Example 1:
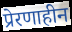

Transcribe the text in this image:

प्रेरणाहीन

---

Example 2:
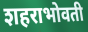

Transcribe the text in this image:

शहराभोवती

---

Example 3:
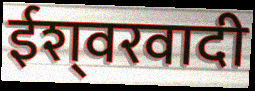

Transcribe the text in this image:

ईश्वरवादी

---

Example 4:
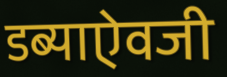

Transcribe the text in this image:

डब्याऐवजी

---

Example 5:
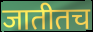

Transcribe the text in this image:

जातीतच